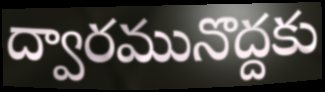
ద్వారమునొద్దకు